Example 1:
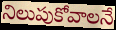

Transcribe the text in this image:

నిలుపుకోవాలనే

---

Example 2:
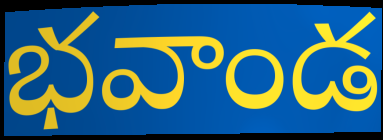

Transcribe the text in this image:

భవాండ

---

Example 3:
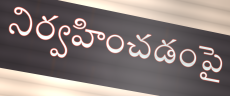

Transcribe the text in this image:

నిర్వహించడంపై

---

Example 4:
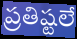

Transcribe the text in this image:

ప్రతిష్టలే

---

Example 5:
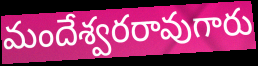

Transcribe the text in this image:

మందేశ్వరరావుగారు